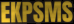
EKPSMS